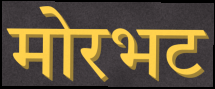
मोरभट